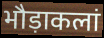
भौड़ाकलां